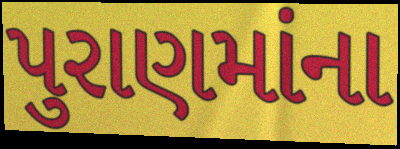
પુરાણમાંના